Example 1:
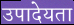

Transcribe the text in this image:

उपादेयता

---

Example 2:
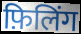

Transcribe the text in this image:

फ़िलिंग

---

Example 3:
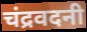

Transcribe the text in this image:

चंद्रवदनी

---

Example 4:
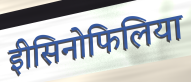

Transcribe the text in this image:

ईोसिनोफिलिया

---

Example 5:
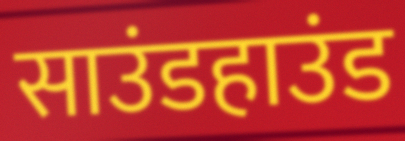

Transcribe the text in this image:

साउंडहाउंड